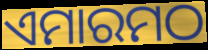
ଏମାରମଠ